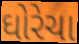
ઘોરેચા